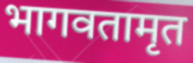
भागवतामृत